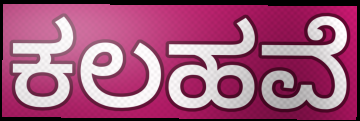
ಕಲಹವೆ